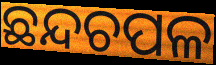
ଛନ୍ଦଚପଳ